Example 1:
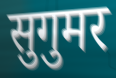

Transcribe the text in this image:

सुगुमर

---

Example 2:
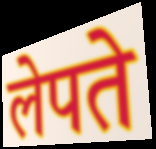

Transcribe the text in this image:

लेपते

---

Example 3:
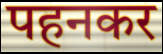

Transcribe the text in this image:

पहनकर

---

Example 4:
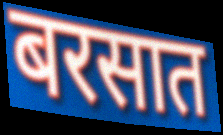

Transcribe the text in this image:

बरसात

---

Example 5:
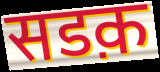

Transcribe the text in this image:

सडक़